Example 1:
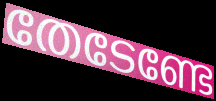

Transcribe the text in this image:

തേടേണ്ടേ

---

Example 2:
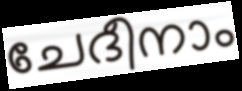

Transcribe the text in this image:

ചേദീനാം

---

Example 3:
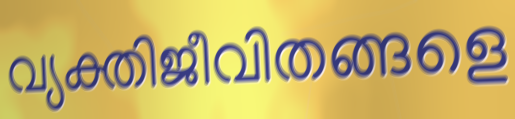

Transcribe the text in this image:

വ്യക്തിജീവിതങ്ങളെ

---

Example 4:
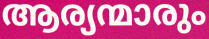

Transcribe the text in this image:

ആര്യന്മാരും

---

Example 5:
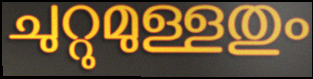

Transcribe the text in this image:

ചുറ്റുമുള്ളതും